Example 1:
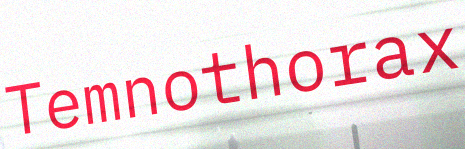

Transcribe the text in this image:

Temnothorax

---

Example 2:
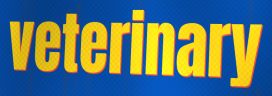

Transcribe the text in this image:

veterinary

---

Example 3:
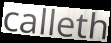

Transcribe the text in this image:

calleth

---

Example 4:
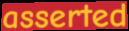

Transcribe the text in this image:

asserted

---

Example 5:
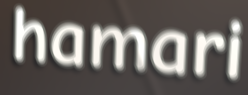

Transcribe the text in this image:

hamari